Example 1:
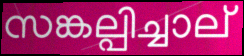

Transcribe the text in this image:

സങ്കല്പിച്ചാല്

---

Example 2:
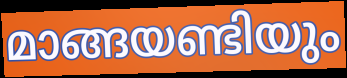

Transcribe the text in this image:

മാങ്ങയണ്ടിയും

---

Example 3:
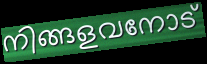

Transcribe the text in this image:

നിങ്ങളവനോട്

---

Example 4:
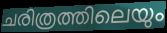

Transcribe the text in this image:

ചരിത്രത്തിലെയും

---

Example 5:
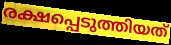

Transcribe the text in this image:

രക്ഷപ്പെടുത്തിയത്